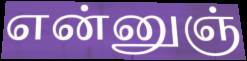
என்னுஞ்